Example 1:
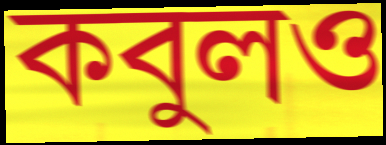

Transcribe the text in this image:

কবুলও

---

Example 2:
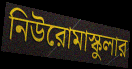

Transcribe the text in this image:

নিউরোমাস্কুলার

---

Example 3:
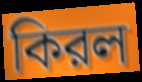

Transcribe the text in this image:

কিরল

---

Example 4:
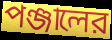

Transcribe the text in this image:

পঞ্জালের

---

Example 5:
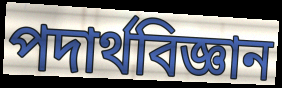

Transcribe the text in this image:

পদার্থবিজ্ঞান